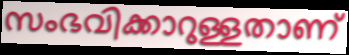
സംഭവിക്കാറുള്ളതാണ്